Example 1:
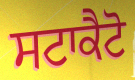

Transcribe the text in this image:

ਸਟਾਕੈਟੋ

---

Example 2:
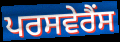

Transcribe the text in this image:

ਪਰਸਵੇਰੈਂਸ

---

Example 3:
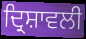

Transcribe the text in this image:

ਦ੍ਰਿਸ਼ਾਵਲੀ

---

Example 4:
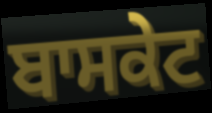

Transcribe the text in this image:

ਬਾਸਕੇਟ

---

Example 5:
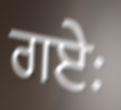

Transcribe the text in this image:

ਗਏਃ